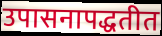
उपासनापद्धतीत